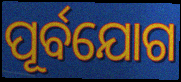
ପୂର୍ବଯୋଗ